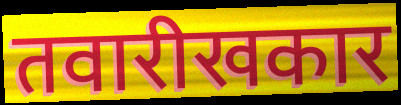
तवारीखकार